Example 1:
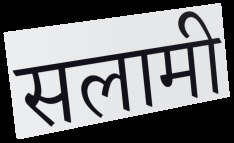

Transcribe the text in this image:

सलामी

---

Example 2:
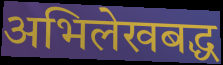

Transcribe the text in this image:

अभिलेखबद्ध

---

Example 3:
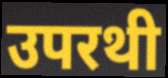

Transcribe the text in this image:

उपरथी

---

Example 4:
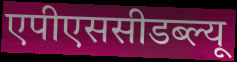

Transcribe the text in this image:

एपीएससीडब्ल्यू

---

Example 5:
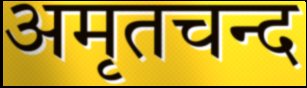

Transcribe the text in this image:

अमृतचन्द